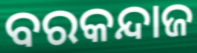
ବରକନ୍ଦାଜ